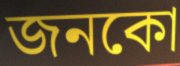
জনকো